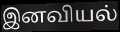
இனவியல்